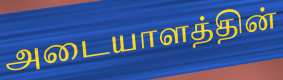
அடையாளத்தின்